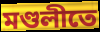
মণ্ডলীতে